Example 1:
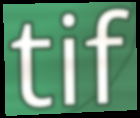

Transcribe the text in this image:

tif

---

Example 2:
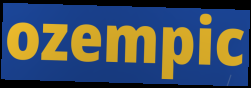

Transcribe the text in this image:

ozempic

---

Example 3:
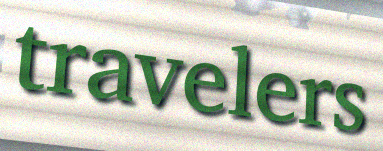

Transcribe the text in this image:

travelers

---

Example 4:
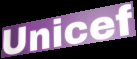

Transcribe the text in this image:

Unicef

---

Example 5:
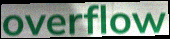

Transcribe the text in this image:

overflow